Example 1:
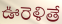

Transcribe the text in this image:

ఊరెళితే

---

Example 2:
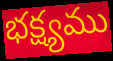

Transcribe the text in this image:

భక్ష్యము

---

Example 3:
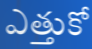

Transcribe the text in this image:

ఎత్తుకో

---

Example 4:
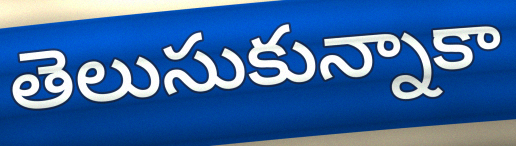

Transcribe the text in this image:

తెలుసుకున్నాకా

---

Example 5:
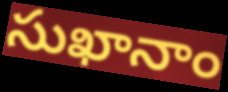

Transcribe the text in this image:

సుఖానాం